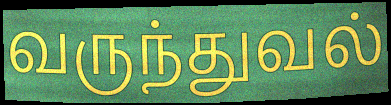
வருந்துவல்